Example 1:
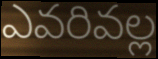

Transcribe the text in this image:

ఎవరివల్ల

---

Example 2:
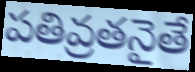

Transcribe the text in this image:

పతివ్రతనైతే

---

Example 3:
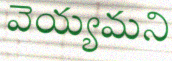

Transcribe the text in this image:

వెయ్యమని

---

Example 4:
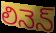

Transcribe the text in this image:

లినెన్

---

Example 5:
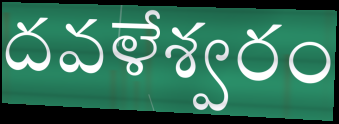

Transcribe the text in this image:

దవళేశ్వరం